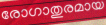
രോഗാതുരമായ